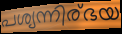
പശ്യന്നിര്ഭയ